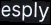
esply